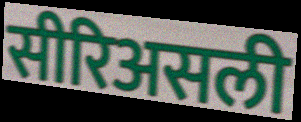
सीरिअसली